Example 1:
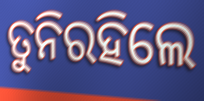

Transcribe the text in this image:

ତୁନିରହିଲେ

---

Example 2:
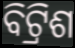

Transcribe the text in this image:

ବିଟ୍ରିଶ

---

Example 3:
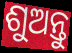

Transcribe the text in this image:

ଶୁଅନ୍ତୁ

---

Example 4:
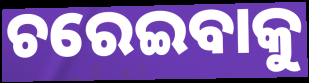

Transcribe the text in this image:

ଚରେଇବାକୁ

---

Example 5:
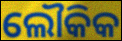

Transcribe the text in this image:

ଲୌକିକ